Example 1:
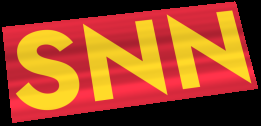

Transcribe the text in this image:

SNN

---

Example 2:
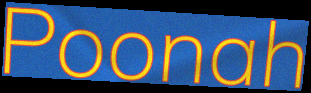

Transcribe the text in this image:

Poonah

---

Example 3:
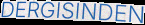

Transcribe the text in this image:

DERGISINDEN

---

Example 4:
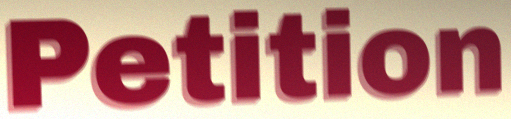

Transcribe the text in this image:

Petition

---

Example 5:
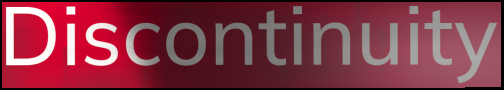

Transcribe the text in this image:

Discontinuity